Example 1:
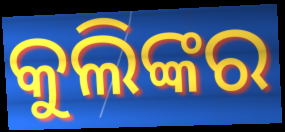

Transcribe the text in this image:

କୁଲିଙ୍କର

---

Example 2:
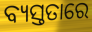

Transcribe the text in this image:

ବ୍ୟସ୍ତତାରେ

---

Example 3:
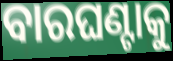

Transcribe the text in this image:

ବାରଘଣ୍ଟାକୁ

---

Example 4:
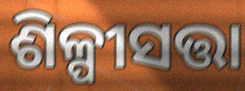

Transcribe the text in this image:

ଶିଳ୍ପୀସତ୍ତା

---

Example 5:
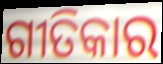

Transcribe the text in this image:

ଗୀତିକାର